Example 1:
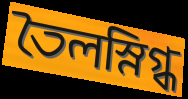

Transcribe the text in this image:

তৈলস্নিগ্ধ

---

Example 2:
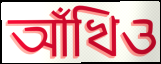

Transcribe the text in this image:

আঁখিও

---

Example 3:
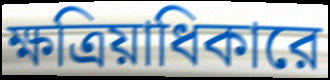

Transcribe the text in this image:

ক্ষত্রিয়াধিকারে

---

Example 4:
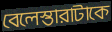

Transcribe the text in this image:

বেলেস্তারাটাকে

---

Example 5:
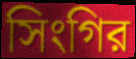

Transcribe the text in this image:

সিংগির